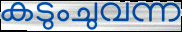
കടുംചുവന്ന